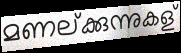
മണല്ക്കുന്നുകള്